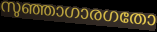
സുഞ്ഞാഗാരഗതോ